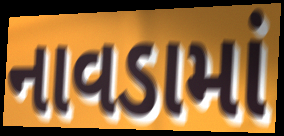
નાવડામાં